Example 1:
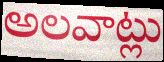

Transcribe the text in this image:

అలవాట్లు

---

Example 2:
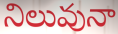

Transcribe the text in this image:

నిలువునా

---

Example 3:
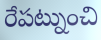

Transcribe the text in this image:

రేపట్నుంచి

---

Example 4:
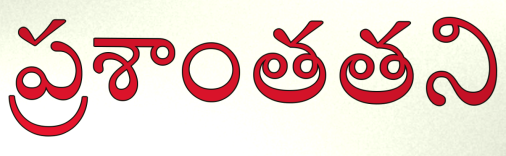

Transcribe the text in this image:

ప్రశాంతతని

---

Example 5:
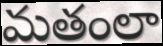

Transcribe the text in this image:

మతంలా